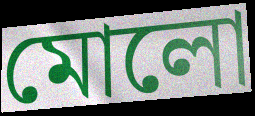
মোলো